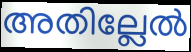
അതില്ലേൽ